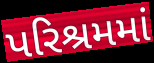
પરિશ્રમમાં